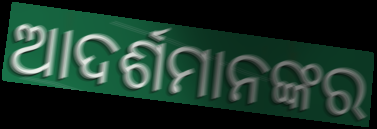
ଆଦର୍ଶମାନଙ୍କର